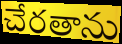
చేరతాను